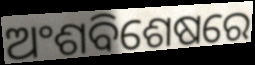
ଅଂଶବିଶେଷରେ